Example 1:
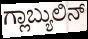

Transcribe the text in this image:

ಗ್ಲಾಬ್ಯುಲಿನ್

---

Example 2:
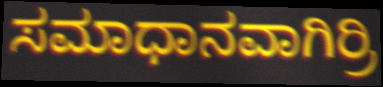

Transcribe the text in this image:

ಸಮಾಧಾನವಾಗಿರ್ರಿ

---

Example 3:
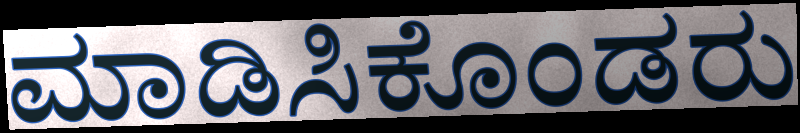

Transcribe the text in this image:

ಮಾಡಿಸಿಕೊಂಡರು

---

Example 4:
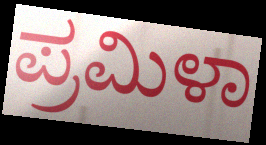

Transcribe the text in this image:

ಪ್ರಮಿಳಾ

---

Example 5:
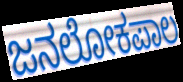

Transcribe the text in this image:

ಜನಲೋಕಪಾಲ